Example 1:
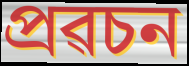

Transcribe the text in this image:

প্ৰৱচন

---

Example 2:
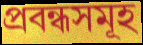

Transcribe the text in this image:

প্ৰবন্ধসমূহ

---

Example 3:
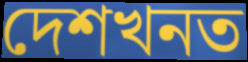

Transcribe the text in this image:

দেশখনত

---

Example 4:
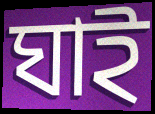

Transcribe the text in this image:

ঘাই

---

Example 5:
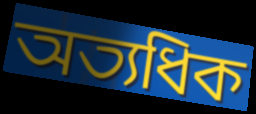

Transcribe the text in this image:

অত্যধিক